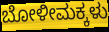
ಬೋಳೀಮಕ್ಕಳು